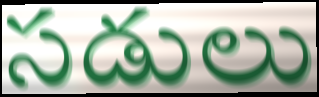
సడులు